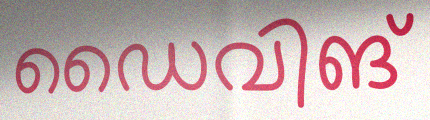
ഡൈവിങ്